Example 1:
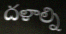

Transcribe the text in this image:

దళాల్ని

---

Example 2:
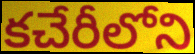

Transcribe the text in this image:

కచేరీలోని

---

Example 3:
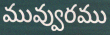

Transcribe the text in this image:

మువ్వురము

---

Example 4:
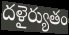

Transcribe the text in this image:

దళైర్యుతం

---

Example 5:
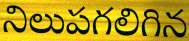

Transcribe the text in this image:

నిలుపగలిగిన